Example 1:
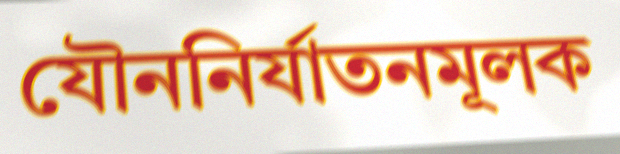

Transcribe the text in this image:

যৌননির্যাতনমূলক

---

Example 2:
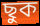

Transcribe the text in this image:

ছুক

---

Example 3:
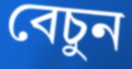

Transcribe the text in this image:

বেচুন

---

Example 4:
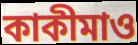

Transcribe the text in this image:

কাকীমাও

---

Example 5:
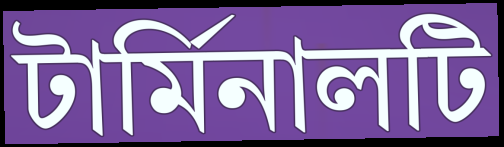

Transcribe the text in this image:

টার্মিনালটি